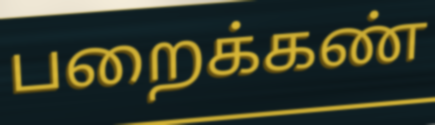
பறைக்கண்